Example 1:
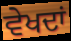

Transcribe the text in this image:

ਵੇਖਦਾਂ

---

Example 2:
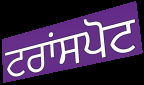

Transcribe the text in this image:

ਟਰਾਂਸਪੋਟ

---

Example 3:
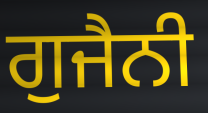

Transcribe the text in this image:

ਗੁਜੈਨੀ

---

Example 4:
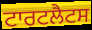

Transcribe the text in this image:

ਟਾਰਟਲੈਟਸ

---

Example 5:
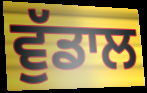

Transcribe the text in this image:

ਵੁੱਡਾਲ